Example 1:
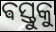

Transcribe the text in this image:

ଵସ୍ତୁକୁ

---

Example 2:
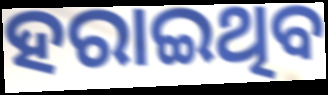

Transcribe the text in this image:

ହରାଇଥିବ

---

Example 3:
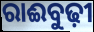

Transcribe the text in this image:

ରାଈବୁଢ଼ୀ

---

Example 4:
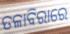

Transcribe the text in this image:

ତଳାବିରାରେ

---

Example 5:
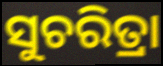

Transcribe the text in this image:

ସୁଚରିତ୍ରା